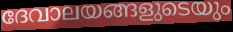
ദേവാലയങ്ങളുടെയും